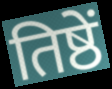
तिष्ठें